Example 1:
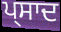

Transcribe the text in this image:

ਪ੍ਸਾਦ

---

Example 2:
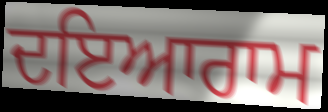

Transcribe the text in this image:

ਦਇਆਰਾਮ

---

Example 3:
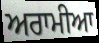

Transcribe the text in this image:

ਅਰਾਮੀਆ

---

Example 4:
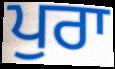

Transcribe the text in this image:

ਪੁਰਾ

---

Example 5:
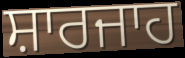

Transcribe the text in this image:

ਸ਼ਾਰਜਾਹ